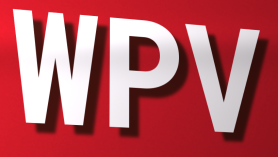
WPV